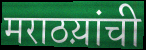
मराठय़ांची